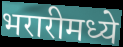
भरारीमध्ये